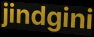
jindgini